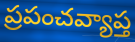
ప్రపంచవ్యాప్త